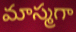
మాస్మగా